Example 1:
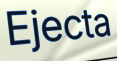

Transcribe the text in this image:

Ejecta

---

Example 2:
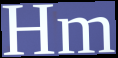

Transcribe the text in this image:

Hm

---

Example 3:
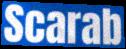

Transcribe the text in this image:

Scarab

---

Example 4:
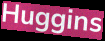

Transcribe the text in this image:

Huggins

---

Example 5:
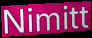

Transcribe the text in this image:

Nimitt